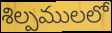
శిల్పములలో